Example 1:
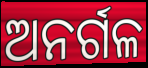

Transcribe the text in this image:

ଅନର୍ଗଳ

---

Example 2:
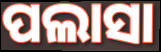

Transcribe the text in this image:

ପଲାସା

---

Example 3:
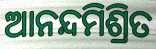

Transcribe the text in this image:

ଆନନ୍ଦମିଶ୍ରିତ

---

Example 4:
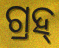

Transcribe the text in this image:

ଗ୍ରହ୍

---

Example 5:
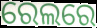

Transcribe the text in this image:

ରେଲରେ